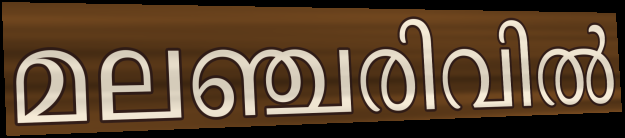
മലഞ്ചരിവിൽ